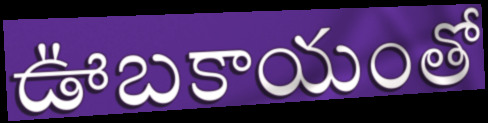
ఊబకాయంతో